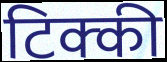
टिक्‍की